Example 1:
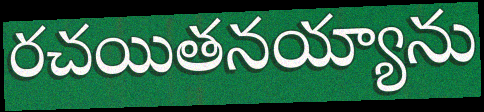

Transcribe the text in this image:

రచయితనయ్యాను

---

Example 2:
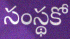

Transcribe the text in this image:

సంస్థకో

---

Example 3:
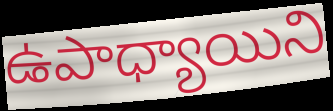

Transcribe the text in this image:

ఉపాధ్యాయిని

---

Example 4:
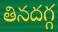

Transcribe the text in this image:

తినదగ్గ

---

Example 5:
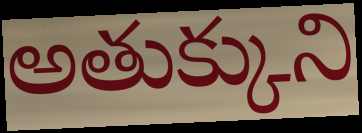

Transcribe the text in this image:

అతుక్కుని